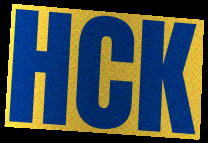
HCK